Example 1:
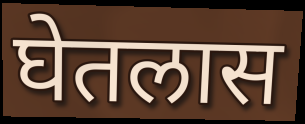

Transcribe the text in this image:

घेतलास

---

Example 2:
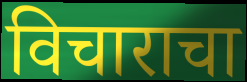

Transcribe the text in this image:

विचाराचा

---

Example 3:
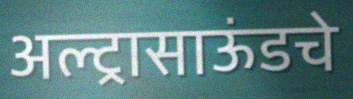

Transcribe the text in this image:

अल्ट्रासाऊंडचे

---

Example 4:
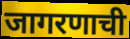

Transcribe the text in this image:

जागरणाची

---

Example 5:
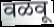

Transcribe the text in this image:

वळवू